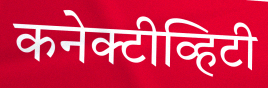
कनेक्टीव्हिटी